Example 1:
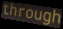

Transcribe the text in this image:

through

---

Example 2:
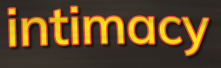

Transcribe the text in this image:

intimacy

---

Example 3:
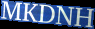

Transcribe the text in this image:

MKDNH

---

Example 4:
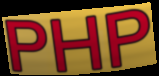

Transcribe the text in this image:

PHP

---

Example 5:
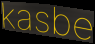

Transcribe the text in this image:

kasbe